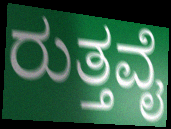
ರುತ್ತವೈ